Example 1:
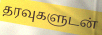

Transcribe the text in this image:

தரவுகளுடன்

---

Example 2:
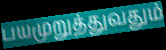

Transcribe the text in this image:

பயமுறுத்துவதும்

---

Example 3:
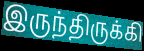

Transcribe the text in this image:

இருந்திருக்கி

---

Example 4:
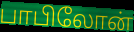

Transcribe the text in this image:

பாபிலோன்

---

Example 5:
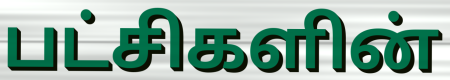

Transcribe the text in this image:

பட்சிகளின்